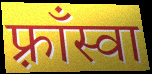
फ़्राँस्वा